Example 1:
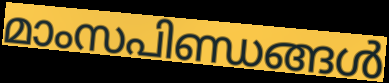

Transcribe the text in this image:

മാംസപിണ്ഡങ്ങൾ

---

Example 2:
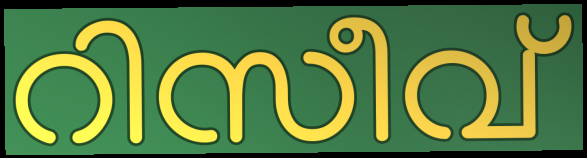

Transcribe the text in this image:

റിസീവ്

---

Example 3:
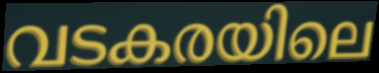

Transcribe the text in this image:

വടകരയിലെ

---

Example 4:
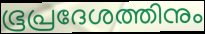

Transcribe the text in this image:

ഭൂപ്രദേശത്തിനും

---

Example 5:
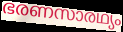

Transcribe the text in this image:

ഭരണസാരഥ്യം